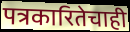
पत्रकारितेचाही